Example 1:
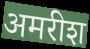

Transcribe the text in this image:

अमरीश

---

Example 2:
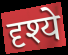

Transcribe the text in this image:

दृश्‍ये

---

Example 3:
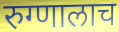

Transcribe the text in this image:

रुग्णालाच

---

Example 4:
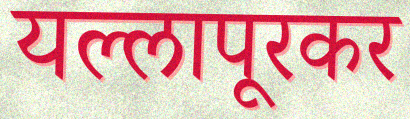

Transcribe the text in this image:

यल्लापूरकर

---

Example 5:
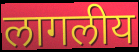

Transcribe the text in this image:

लागलीय